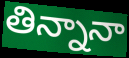
తిన్నానా